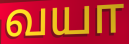
வயா